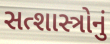
સત્શાસ્ત્રોનું